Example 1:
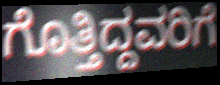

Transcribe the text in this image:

ಗೊತ್ತಿದ್ದವರಿಗೆ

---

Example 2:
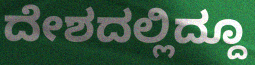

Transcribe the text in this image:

ದೇಶದಲ್ಲಿದ್ದೂ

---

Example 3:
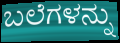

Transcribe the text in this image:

ಬಲೆಗಳನ್ನು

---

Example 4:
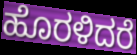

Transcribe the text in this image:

ಹೊರಳಿದರೆ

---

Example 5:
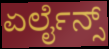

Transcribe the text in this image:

ಏರ್ಲೈನ್ಸ್